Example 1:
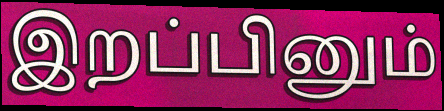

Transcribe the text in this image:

இறப்பினும்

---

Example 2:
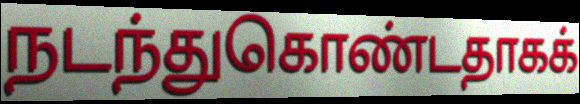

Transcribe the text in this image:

நடந்துகொண்டதாகக்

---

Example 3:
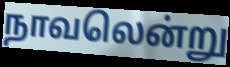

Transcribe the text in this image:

நாவலென்று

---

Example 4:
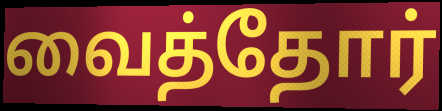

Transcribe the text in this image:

வைத்தோர்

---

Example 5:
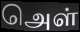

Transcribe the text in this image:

அெள்